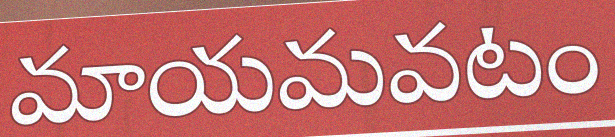
మాయమవటం